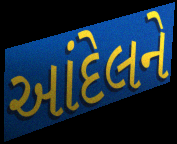
આંદેલને